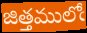
జిత్తములోఁ